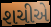
શચીએ